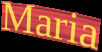
Maria